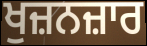
ਖੁਜ਼ਨਜ਼ਾਰ